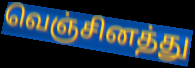
வெஞ்சினத்து